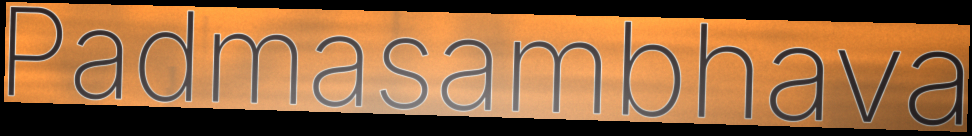
Padmasambhava